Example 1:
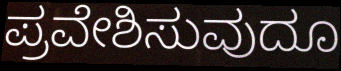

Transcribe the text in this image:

ಪ್ರವೇಶಿಸುವುದೂ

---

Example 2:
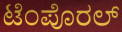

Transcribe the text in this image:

ಟೆಂಪೊರಲ್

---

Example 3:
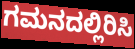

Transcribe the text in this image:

ಗಮನದಲ್ಲಿರಿಸಿ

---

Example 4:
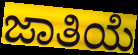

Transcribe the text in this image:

ಜಾತಿಯೆ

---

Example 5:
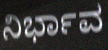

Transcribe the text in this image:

ನಿರ್ಭಾವ